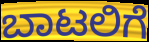
ಬಾಟಲಿಗೆ